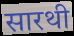
सारथी